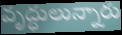
వృద్ధులున్నారు